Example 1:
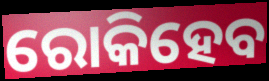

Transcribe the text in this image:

ରୋକିହେବ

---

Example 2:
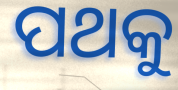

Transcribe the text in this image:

ପଥକୁ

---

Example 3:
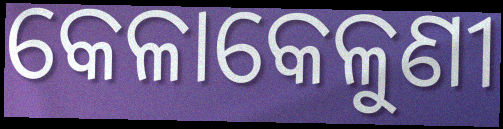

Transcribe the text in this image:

କେଳାକେଳୁଣୀ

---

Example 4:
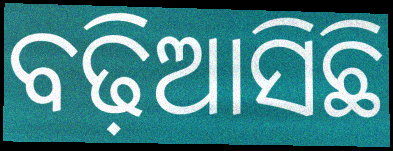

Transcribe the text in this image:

ବଢ଼ିଆସିଛି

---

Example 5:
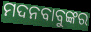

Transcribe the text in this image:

ମଦନବାବୁଙ୍କର